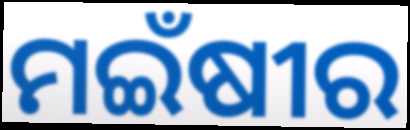
ମଇଁଷୀର